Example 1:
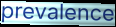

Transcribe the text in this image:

prevalence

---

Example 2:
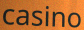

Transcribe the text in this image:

casino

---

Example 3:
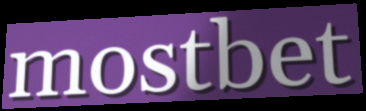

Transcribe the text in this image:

mostbet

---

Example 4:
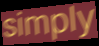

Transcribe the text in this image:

simply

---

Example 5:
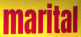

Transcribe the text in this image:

marital